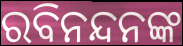
ରବିନନ୍ଦନଙ୍କ